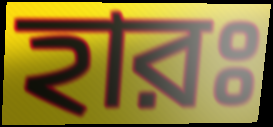
হারঃ